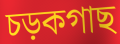
চড়কগাছ